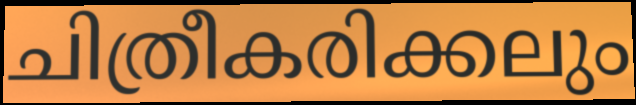
ചിത്രീകരിക്കലും